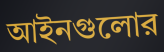
আইনগুলোর